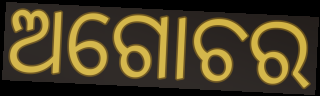
ଅଗୋଚର